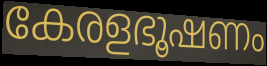
കേരളഭൂഷണം